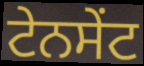
ਟੇਨਸੇਂਟ